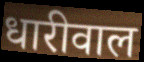
धारीवाल